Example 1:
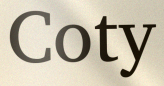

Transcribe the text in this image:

Coty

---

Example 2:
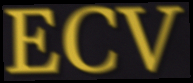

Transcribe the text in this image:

ECV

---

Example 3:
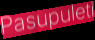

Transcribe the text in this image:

Pasupuleti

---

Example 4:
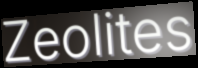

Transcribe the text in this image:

Zeolites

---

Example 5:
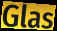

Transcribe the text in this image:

Glas